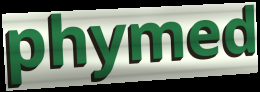
phymed